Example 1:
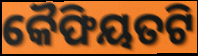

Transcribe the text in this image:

କୈଫିୟତଟି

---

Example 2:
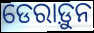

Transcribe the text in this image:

ଡେରାଡ଼ୁନ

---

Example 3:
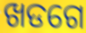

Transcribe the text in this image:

ଖଡଗେ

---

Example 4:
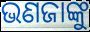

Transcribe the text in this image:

ଭଣଜାଙ୍କୁ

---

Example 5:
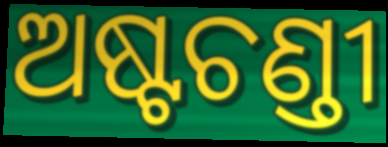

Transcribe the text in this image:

ଅଷ୍ଟଚଣ୍ଡୀ